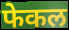
फेकल